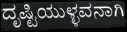
ದೃಷ್ಟಿಯುಳ್ಳವನಾಗಿ